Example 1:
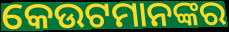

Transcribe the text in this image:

କେଉଟମାନଙ୍କର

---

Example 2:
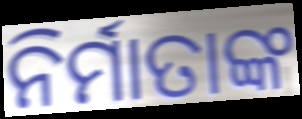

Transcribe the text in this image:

ନିର୍ମାତାଙ୍କ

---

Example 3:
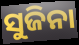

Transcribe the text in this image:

ସୁଜିନା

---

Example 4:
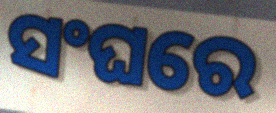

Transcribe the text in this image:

ସଂଘରେ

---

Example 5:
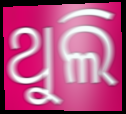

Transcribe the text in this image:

ଥୁଲି